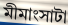
মীমাংসাটা